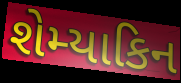
શેમ્યાકિન